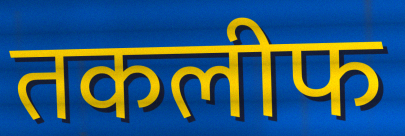
तकलीफ